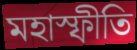
মহাস্ফীতি